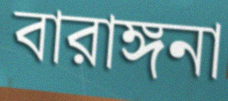
বারাঙ্গনা